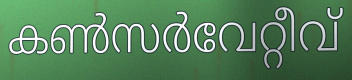
കൺസർവേറ്റീവ്